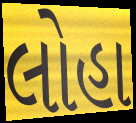
લોહા